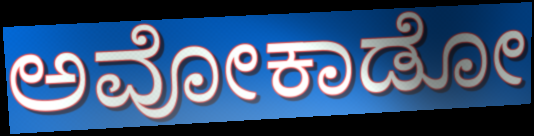
ಅವೋಕಾಡೋ